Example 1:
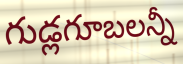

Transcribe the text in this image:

గుడ్లగూబలన్నీ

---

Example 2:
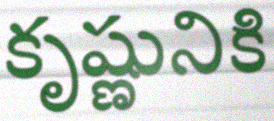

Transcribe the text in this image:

కృష్ణునికి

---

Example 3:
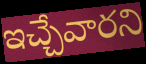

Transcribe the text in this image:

ఇచ్చేవారని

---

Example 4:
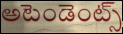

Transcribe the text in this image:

అటెండెంట్స్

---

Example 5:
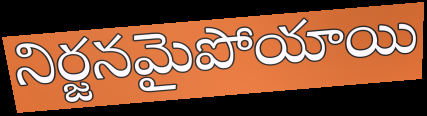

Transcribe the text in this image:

నిర్జనమైపోయాయి